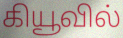
கியூவில்